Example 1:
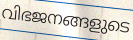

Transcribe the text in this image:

വിഭജനങ്ങളുടെ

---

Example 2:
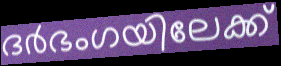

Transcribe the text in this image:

ദർഭംഗയിലേക്ക്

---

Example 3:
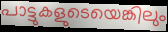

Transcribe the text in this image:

പാട്ടുകളുടെയെങ്കിലും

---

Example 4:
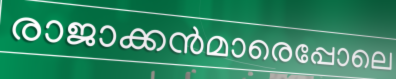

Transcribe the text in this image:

രാജാക്കൻമാരെപ്പോലെ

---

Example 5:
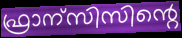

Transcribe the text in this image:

ഫ്രാന്സിസിന്റെ